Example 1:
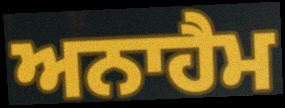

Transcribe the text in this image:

ਅਨਾਹੈਮ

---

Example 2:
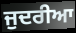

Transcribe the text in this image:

ਜੁਦਰੀਆ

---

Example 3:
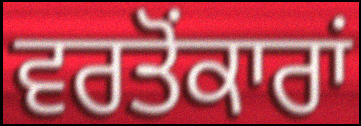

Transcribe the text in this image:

ਵਰਤੋਂਕਾਰਾਂ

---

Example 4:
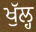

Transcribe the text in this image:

ਖੁੱਲ੍ਹ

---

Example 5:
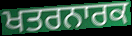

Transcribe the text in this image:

ਖਤਰਨਾਰਕ